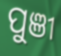
ପୁଞୀ